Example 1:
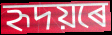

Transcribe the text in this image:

হৃদয়ৰে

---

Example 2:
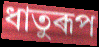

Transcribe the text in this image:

ধাতুৰূপ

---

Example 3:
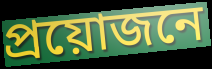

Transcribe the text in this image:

প্ৰয়োজনে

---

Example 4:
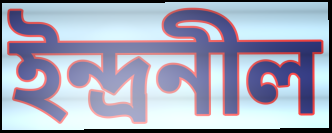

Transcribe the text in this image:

ইন্দ্ৰনীল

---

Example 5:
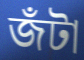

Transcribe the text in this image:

জঁটা